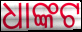
ଧାଙ୍କଟ